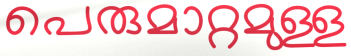
പെരുമാറ്റമുള്ള